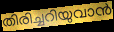
തിരിച്ചറിയുവാൻ